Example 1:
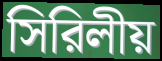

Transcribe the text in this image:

সিরিলীয়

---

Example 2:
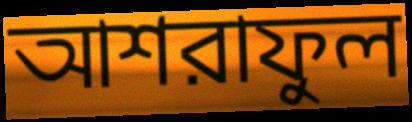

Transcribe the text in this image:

আশরাফুল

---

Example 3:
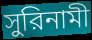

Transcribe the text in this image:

সুরিনামী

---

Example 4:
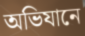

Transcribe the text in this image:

অভিযানে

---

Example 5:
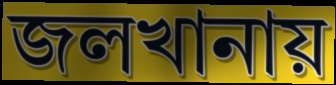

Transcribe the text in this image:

জলখানায়